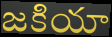
జకియా